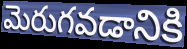
మెరుగవడానికి